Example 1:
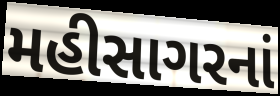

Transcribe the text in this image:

મહીસાગરનાં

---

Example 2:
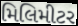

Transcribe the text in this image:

મિલિમીટર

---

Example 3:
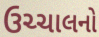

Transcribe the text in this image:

ઉચ્ચાલનો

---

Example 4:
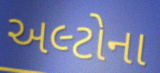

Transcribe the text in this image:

અલ્ટોના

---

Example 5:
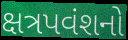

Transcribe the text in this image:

ક્ષત્રપવંશનો